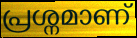
പ്രശ്നമാണ്